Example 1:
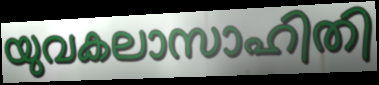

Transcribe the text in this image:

യുവകലാസാഹിതി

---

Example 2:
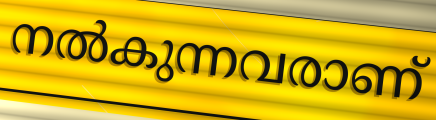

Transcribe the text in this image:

നൽകുന്നവരാണ്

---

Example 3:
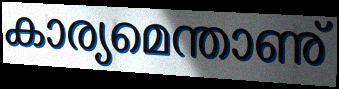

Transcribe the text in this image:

കാര്യമെന്താണു്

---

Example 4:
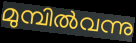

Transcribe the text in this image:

മുമ്പിൽവന്നു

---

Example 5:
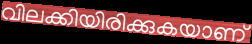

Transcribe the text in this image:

വിലക്കിയിരിക്കുകയാണ്